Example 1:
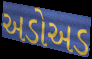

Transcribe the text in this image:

અડોઅડ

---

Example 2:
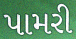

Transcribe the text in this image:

પામરી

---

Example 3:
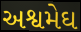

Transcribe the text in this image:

અશ્વમેઘ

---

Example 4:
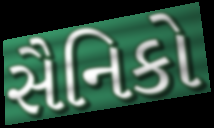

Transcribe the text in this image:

સૈનિકો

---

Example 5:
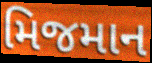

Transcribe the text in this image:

મિજમાન